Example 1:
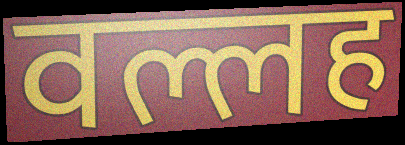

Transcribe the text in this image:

वल्लह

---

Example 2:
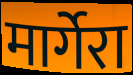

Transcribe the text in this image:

मार्गेरा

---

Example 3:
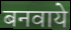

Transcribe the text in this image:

बनवाये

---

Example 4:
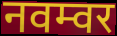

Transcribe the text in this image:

नवम्वर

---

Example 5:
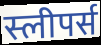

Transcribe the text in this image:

स्लीपर्स